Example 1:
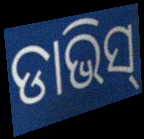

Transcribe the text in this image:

ଡାଭିସ୍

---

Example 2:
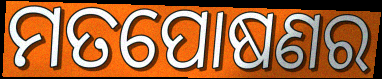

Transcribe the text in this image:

ମତପୋଷଣର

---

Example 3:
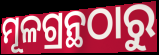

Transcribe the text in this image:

ମୂଳଗ୍ରନ୍ଥଠାରୁ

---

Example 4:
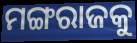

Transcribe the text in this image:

ମଙ୍ଗରାଜକୁ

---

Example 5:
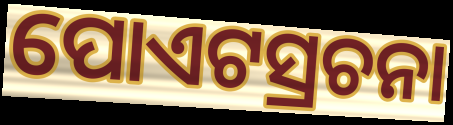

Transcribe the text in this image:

ପୋଏଟସ୍ରଚନା